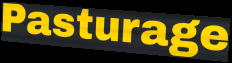
Pasturage